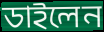
ডাইলেন